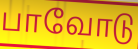
பாவோடு